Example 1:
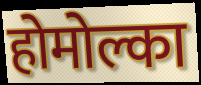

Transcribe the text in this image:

होमोल्का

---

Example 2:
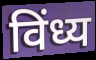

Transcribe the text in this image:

विंध्य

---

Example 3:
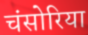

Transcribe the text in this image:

चंसोरिया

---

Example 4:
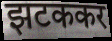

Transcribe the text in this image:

झटककर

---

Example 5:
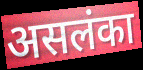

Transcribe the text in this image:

असलंका